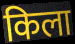
किला